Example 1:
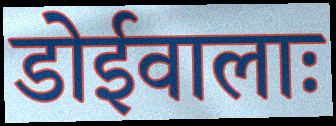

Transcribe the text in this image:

डोईवालाः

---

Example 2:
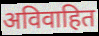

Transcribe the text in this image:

अविवाहित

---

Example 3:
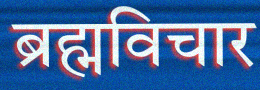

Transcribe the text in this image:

ब्रह्मविचार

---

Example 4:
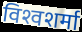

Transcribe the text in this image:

विश्वशर्मा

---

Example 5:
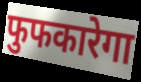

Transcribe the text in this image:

फुफकारेगा